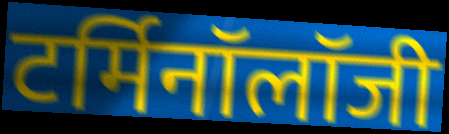
टर्मिनॉलॉजी